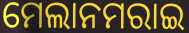
ମେଲାନମରାଇ